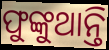
ଫୁଙ୍କୁଥାନ୍ତି